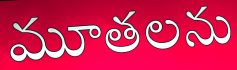
మూతలను